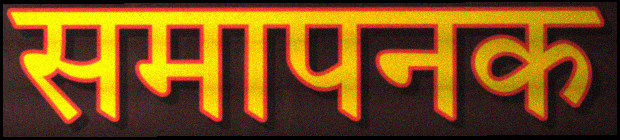
समापनक